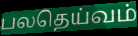
பலதெய்வம்